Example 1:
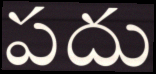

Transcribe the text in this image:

పదు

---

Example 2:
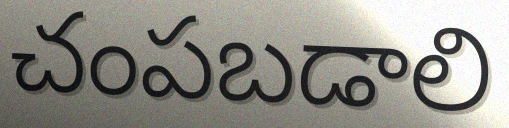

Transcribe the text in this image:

చంపబడాలి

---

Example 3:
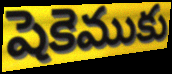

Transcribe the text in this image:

షెకెముకు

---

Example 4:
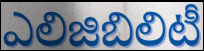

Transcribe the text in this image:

ఎలిజిబిలిటీ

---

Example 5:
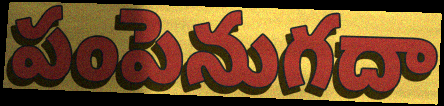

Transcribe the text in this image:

పంపెనుగదా